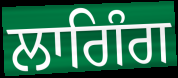
ਲਾਗਿੰਗ